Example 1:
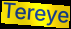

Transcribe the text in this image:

Tereye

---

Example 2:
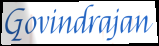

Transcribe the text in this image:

Govindrajan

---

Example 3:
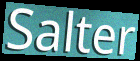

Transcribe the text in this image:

Salter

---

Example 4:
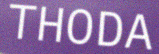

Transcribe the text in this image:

THODA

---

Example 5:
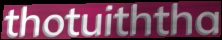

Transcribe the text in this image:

thotuiththa